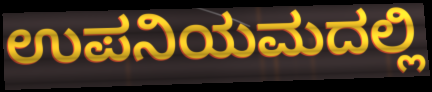
ಉಪನಿಯಮದಲ್ಲಿ